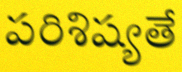
పరిశిష్యతే